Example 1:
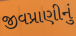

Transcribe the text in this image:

જીવપ્રાણીનું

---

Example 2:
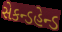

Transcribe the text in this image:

સેકન્ડહેન્ડ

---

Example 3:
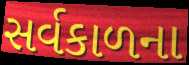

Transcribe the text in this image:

સર્વકાળના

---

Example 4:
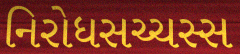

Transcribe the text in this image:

નિરોધસચ્ચસ્સ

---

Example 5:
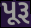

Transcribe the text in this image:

પૂરૂ